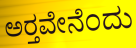
ಅರ‍್ತವೇನೆಂದು